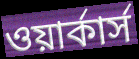
ওয়ার্কার্স